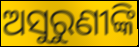
ଅସୁରୁଣୀଙ୍କି